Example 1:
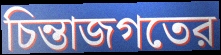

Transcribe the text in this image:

চিন্তাজগতের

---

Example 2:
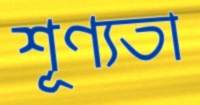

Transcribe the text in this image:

শূণ্যতা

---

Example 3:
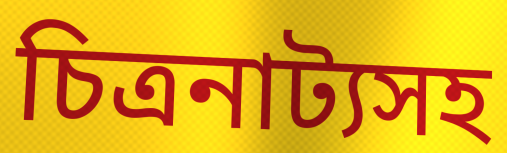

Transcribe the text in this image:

চিত্রনাট্যসহ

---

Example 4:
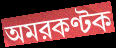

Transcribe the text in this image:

অমরকণ্টক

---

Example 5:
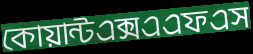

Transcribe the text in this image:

কোয়ান্টএক্সএএফএস